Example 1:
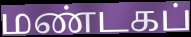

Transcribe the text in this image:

மண்டகப்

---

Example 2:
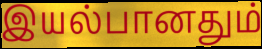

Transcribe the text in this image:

இயல்பானதும்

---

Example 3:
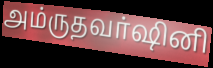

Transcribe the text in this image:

அம்ருதவர்ஷினி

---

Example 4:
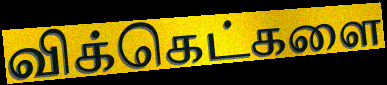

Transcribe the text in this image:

விக்கெட்களை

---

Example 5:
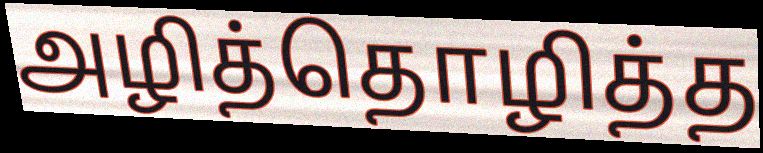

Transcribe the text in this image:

அழித்தொழித்த